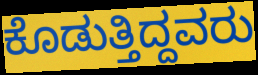
ಕೊಡುತ್ತಿದ್ದವರು